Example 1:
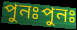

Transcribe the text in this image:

পুনঃপুনঃ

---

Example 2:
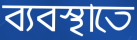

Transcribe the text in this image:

ব্যবস্থাতে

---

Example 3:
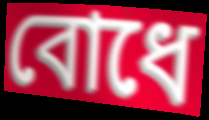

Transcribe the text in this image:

বোধে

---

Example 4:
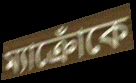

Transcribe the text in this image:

ম্যাক্রোঁকে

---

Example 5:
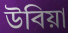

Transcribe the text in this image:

উবিয়া